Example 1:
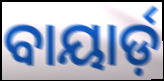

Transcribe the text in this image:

ବାୟାର୍ଡ଼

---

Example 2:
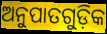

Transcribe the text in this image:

ଅନୁପାତଗୁଡ଼ିକ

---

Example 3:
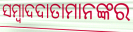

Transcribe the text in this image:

ସମ୍ବାଦଦାତାମାନଙ୍କର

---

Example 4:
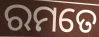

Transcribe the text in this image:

ରମତେ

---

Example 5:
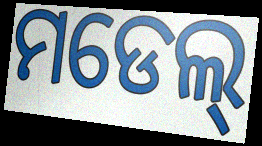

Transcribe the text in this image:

ମଡେଲ୍